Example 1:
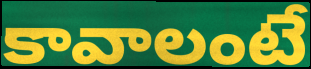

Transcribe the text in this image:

కావాలంటే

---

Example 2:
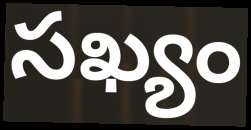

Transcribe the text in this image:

సఖ్యం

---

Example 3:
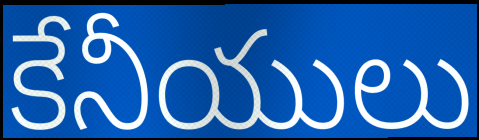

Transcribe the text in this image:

కేనీయులు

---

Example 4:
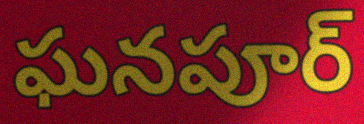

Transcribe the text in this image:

ఘనపూర్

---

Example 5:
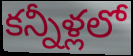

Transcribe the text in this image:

కన్నీళ్లలో